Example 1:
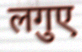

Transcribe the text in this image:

लगुए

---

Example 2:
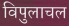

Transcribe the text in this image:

विपुलाचल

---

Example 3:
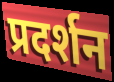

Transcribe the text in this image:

प्रदर्शन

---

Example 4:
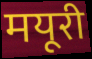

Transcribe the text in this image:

मयूरी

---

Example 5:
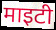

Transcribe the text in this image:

माइटी